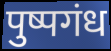
पुष्पगंध